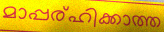
മാപ്പര്ഹിക്കാത്ത